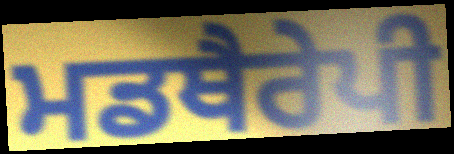
ਮਡਥੈਰੇਪੀ